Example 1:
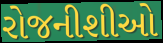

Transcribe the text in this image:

રોજનીશીઓ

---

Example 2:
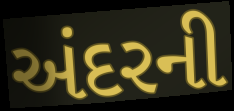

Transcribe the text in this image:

અંદરની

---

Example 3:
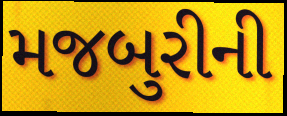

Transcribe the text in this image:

મજબુરીની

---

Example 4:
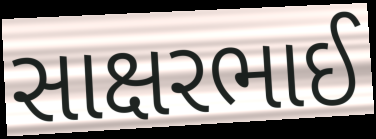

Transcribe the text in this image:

સાક્ષરભાઈ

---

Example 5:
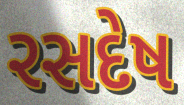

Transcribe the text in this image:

રસદેષ